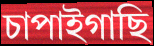
চাপাইগাছি